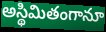
అస్థిమితంగానూ